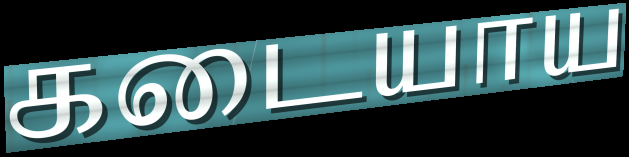
கடையாய